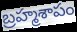
బ్రహ్మశాపం